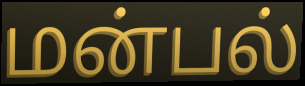
மன்பல்